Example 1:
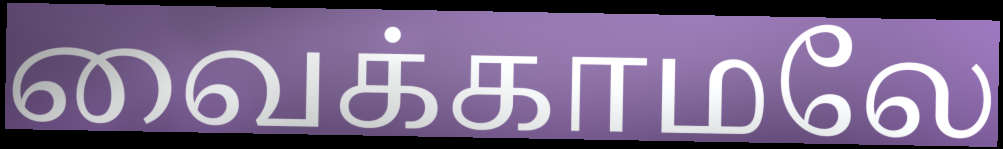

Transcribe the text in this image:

வைக்காமலே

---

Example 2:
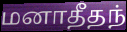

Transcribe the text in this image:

மனாதீதந்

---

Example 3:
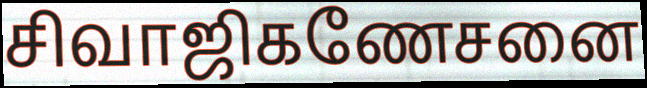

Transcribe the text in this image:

சிவாஜிகணேசனை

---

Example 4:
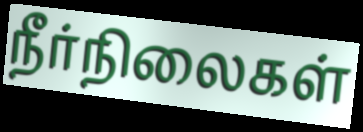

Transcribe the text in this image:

நீர்நிலைகள்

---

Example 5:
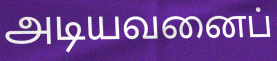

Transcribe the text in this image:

அடியவனைப்